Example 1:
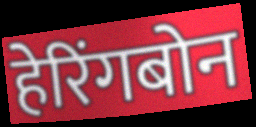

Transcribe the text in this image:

हेरिंगबोन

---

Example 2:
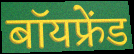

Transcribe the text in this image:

बॉयफ्रेंड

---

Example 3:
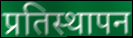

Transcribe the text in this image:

प्रतिस्थापन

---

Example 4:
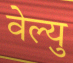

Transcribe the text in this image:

वेल्यु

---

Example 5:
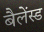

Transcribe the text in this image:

बैलेंस्ड